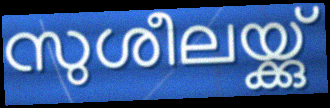
സുശീലയ്ക്കു്